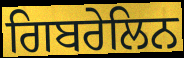
ਗਿਬਰੇਲਿਨ